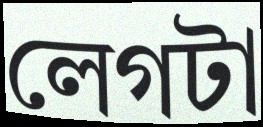
লেগটা